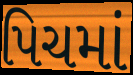
પિચમાં